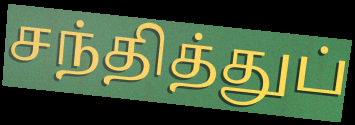
சந்தித்துப்